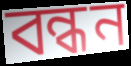
বন্ধন